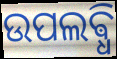
ଉପଲଵ୍ଧି